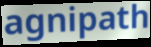
agnipath